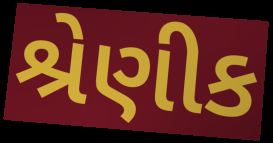
શ્રેણીક